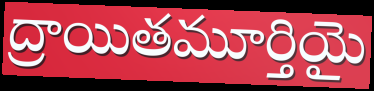
ద్రాయితమూర్తియై